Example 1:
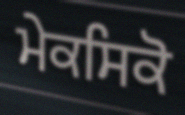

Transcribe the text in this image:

ਮੇਕਸਿਕੋ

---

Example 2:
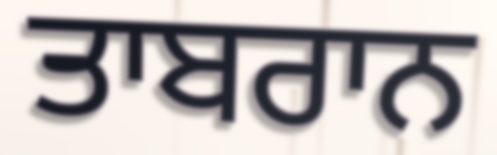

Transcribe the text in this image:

ਤਾਬਰਾਨ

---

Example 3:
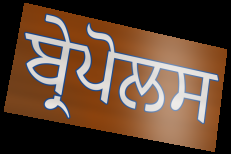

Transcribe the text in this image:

ਬ੍ਰੇਪੋਲਸ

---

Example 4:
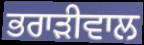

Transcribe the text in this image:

ਭਰਾੜੀਵਾਲ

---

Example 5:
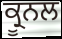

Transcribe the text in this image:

ਕ੍ਰੂਨਲ